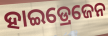
ହାଇଡ୍ରେଜେନ